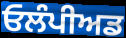
ਓਲੰਪੀਅਡ